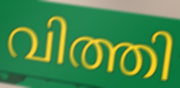
വിത്തി